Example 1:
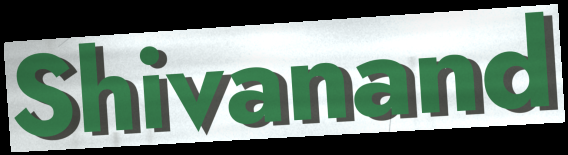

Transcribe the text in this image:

Shivanand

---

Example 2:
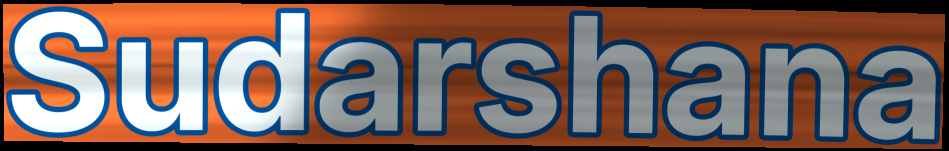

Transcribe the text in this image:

Sudarshana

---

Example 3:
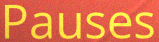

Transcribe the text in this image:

Pauses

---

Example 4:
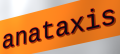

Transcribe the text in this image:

anataxis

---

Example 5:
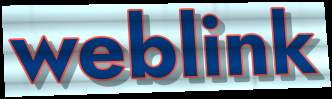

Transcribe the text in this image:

weblink